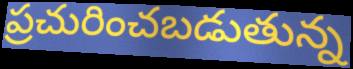
ప్రచురించబడుతున్న